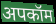
अपकॉम